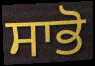
ਸਾਭੋ